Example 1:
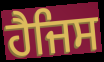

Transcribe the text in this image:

ਹੈਜਿਸ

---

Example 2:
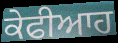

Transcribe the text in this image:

ਕੇਫੀਆਹ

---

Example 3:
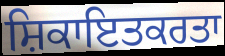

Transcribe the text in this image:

ਸ਼ਿਕਾਇਤਕਰਤਾ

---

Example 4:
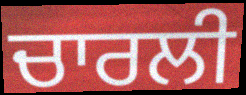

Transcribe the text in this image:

ਚਾਰਲੀ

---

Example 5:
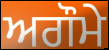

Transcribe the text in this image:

ਅਗੌਮੇ